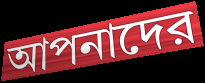
আপনাদের